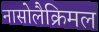
नासोलैक्रिमल